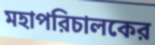
মহাপরিচালকের